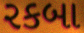
રકબા